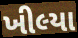
ખીલ્યા